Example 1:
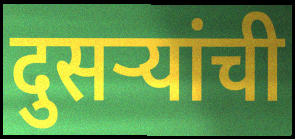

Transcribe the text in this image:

दुसऱ्यांची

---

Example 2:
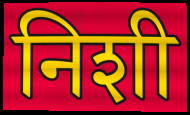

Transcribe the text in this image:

निशी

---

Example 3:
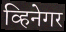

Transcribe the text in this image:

व्हिनेगर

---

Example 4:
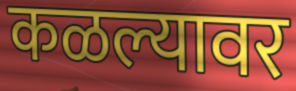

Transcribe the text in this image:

कळल्यावर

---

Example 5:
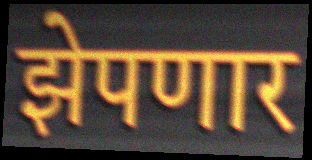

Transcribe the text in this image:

झेपणार